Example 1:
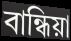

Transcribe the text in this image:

বান্ধিয়া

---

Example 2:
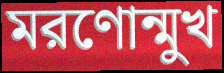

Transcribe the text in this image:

মরণোন্মুখ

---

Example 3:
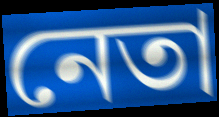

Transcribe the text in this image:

নেতা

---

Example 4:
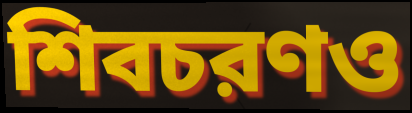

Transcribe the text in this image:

শিবচরণও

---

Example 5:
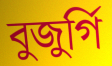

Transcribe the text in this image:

বুজুর্গি